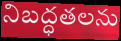
నిబద్ధతలను